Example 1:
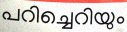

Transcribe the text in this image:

പറിച്ചെറിയും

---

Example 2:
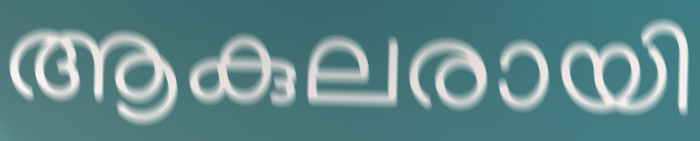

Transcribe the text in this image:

ആകുലരായി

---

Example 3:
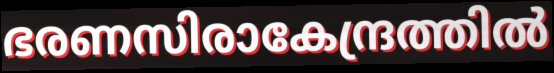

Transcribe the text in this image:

ഭരണസിരാകേന്ദ്രത്തിൽ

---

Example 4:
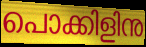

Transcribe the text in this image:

പൊക്കിളിനു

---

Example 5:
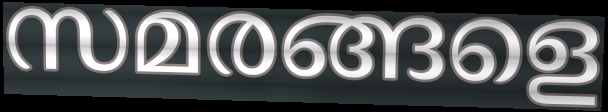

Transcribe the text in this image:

സമരങ്ങളെ